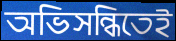
অভিসন্ধিতেই